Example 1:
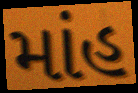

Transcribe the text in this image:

માંહ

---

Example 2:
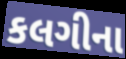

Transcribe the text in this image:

કલગીના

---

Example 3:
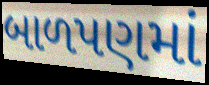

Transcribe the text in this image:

બાળપણમાં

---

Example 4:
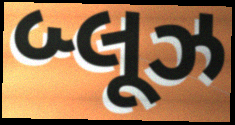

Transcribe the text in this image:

બ્લૂઝ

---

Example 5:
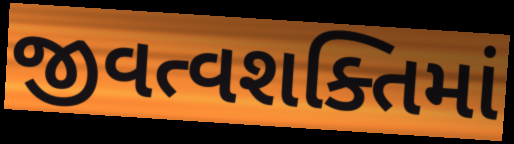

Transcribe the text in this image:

જીવત્વશક્તિમાં